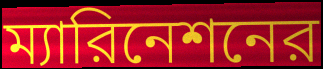
ম্যারিনেশনের